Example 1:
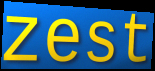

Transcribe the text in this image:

zest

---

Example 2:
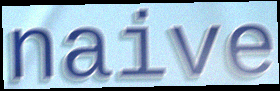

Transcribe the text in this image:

naive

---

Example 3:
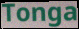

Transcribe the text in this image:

Tonga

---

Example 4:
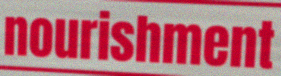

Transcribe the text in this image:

nourishment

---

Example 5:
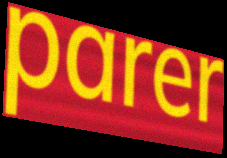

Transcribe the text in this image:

parer